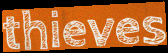
thieves